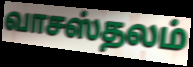
வாசஸ்தலம்